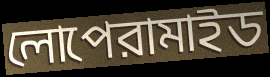
লোপেরামাইড